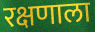
रक्षणाला